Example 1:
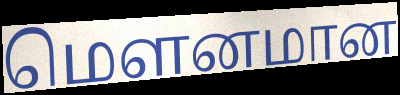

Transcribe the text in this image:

மௌனமான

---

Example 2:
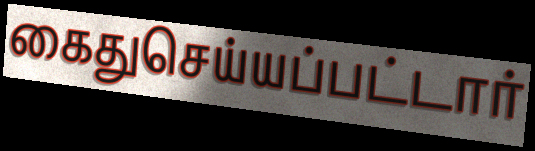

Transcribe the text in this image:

கைதுசெய்யப்பட்டார்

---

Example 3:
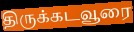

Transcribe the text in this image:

திருக்கடவூரை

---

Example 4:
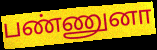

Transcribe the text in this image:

பண்ணுனா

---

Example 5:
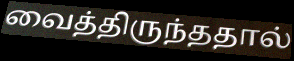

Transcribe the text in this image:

வைத்திருந்ததால்